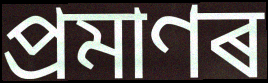
প্ৰমাণৰ